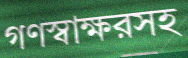
গণস্বাক্ষরসহ